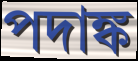
পদাঙ্ক